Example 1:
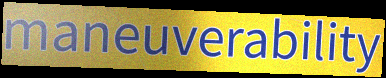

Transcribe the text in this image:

maneuverability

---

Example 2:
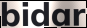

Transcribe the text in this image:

bidar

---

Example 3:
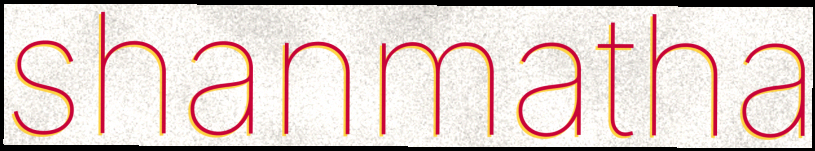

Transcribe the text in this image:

shanmatha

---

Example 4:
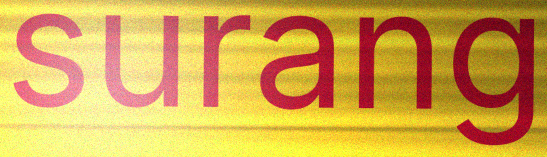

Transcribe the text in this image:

surang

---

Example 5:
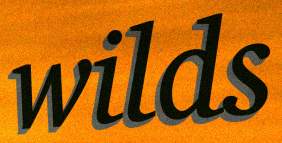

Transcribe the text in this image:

wilds